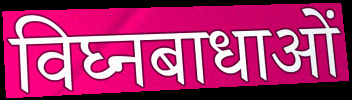
विघ्नबाधाओं